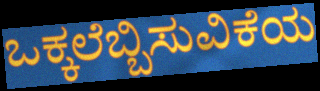
ಒಕ್ಕಲೆಬ್ಬಿಸುವಿಕೆಯ